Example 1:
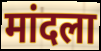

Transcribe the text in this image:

मांदला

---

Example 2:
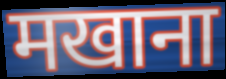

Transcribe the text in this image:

मखाना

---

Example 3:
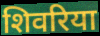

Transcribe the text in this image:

शिवरिया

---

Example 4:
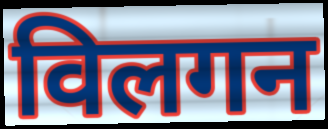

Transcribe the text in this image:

विलगन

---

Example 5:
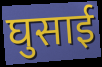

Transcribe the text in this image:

घुसाई